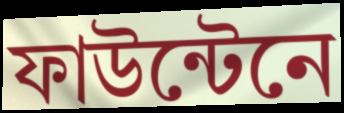
ফাউন্টেনে